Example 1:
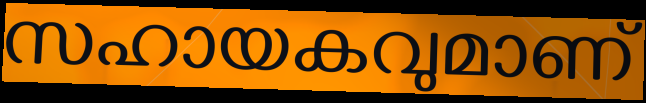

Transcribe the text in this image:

സഹായകവുമാണ്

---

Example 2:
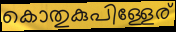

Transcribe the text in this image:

കൊതുകുപിള്ളേര്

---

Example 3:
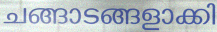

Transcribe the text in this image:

ചങ്ങാടങ്ങളാക്കി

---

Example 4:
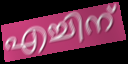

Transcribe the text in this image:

എച്ചിന്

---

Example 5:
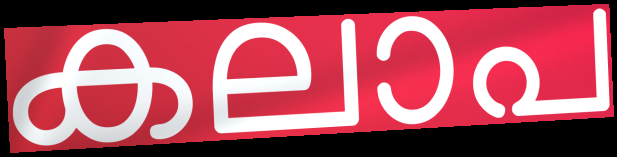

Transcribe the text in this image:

കലാപ